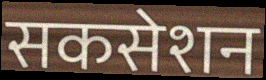
सकसेशन